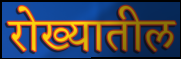
रोख्यातील